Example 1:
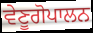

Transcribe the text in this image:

ਵੇਣੂਗੋਪਾਲਨ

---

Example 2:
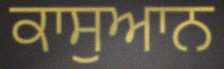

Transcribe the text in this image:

ਕਾਸੁਆਨ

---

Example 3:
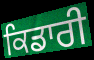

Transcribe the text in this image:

ਕਿਡਾਰੀ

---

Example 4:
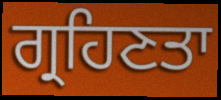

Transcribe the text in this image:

ਗ੍ਰਹਿਣਤਾ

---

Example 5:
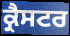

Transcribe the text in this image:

ਕ੍ਰੈਸਟਰ